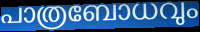
പാത്രബോധവും